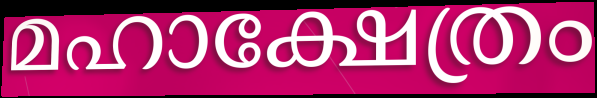
മഹാക്ഷേത്രം